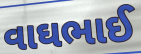
વાઘભાઈ